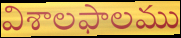
విశాలఫాలము